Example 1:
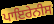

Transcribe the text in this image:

ਪਾਇਰੇਨੀਸ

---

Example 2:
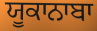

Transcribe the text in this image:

ਯੂਕਾਨਾਬਾ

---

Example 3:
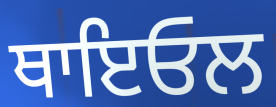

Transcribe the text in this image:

ਥਾਇਓਲ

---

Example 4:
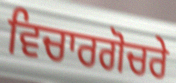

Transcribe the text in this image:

ਵਿਚਾਰਗੋਚਰੇ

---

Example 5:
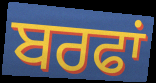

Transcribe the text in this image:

ਬਰਫਾਂ